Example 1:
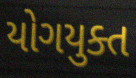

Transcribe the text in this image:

યોગયુક્ત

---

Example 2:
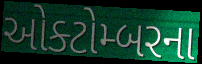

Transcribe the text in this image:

ઓક્ટોમ્બરના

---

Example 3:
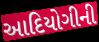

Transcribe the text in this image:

આદિયોગીની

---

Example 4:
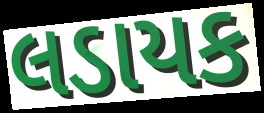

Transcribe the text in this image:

લડાયક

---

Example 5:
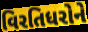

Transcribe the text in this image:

વિરતિધરોને